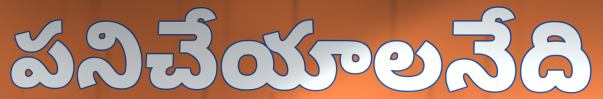
పనిచేయాలనేది